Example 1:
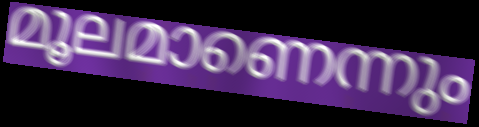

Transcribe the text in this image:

മൂലമാണെന്നും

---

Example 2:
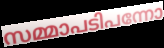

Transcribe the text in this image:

സമ്മാപടിപന്നോ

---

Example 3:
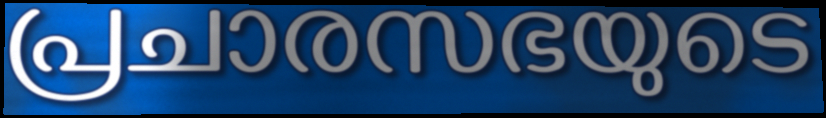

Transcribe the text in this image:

പ്രചാരസഭയുടെ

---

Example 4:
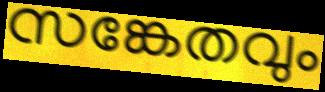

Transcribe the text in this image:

സങ്കേതവും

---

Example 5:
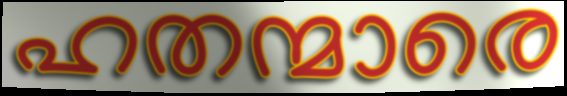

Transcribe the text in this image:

ഹതന്മാരെ